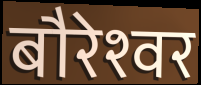
बौरेश्वर